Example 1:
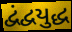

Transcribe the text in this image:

દ્વંદ્વયુદ્ધ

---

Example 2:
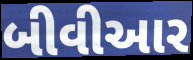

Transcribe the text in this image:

બીવીઆર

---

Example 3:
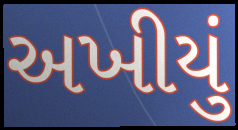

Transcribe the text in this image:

અખીયું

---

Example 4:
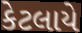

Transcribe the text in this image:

કેટલાયે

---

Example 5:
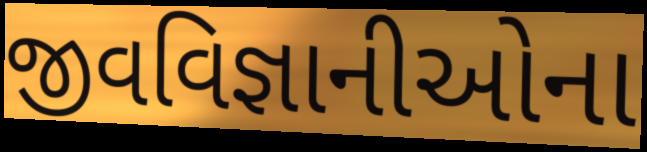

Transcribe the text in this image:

જીવવિજ્ઞાનીઓના